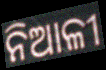
ନିଆଳୀ